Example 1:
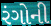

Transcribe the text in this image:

રંગોની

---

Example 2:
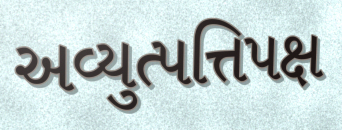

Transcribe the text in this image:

અવ્યુત્પત્તિપક્ષ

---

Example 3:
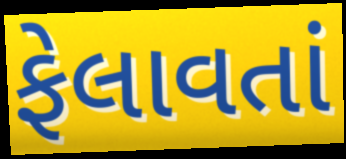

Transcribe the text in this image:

ફેલાવતાં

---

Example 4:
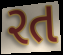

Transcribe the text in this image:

રત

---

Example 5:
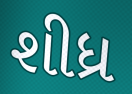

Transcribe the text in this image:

શીધ્ર